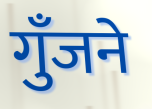
गुँजने